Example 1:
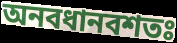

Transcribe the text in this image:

অনবধানবশতঃ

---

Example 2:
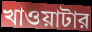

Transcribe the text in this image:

খাওয়াটার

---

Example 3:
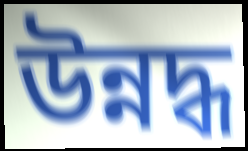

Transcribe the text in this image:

উন্নদ্ধ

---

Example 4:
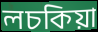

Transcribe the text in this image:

লচকিয়া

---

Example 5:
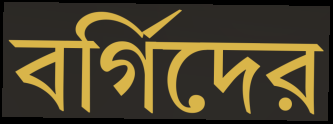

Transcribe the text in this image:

বর্গিদের